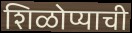
शिळोप्याची